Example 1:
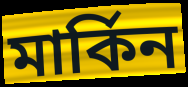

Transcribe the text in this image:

মাৰ্কিন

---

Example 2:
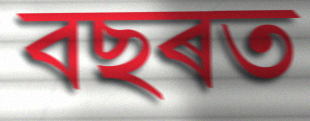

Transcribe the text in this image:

বছৰত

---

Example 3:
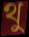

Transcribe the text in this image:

থু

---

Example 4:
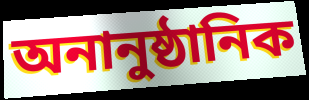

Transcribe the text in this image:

অনানুষ্ঠানিক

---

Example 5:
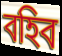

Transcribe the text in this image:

বহিব